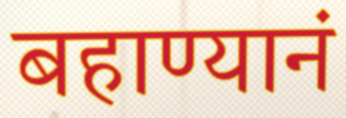
बहाण्यानं